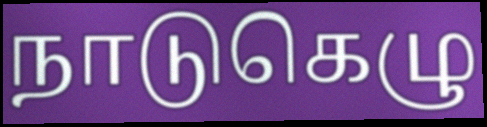
நாடுகெழு